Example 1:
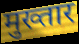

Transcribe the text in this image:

मुख्तार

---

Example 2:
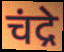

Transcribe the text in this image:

चंद्रे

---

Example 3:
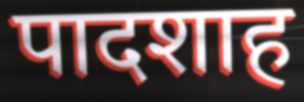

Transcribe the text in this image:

पादशाह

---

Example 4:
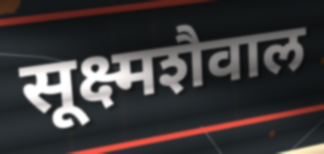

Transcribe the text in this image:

सूक्ष्मशैवाल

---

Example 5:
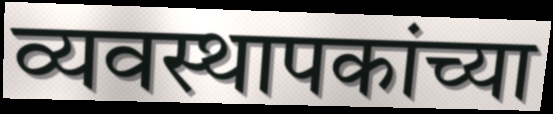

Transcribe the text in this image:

व्यवस्थापकांच्या